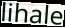
lihale